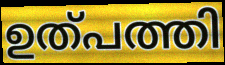
ഉത്പത്തി